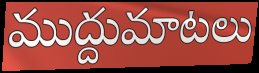
ముద్దుమాటలు